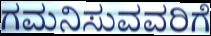
ಗಮನಿಸುವವರಿಗೆ